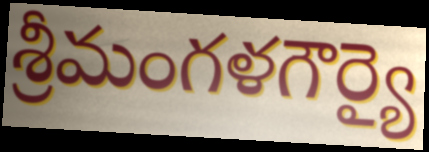
శ్రీమంగళగౌర్యై